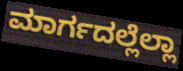
ಮಾರ್ಗದಲ್ಲೆಲ್ಲಾ